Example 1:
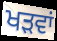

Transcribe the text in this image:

ਖੜਵਾਂ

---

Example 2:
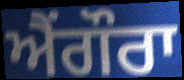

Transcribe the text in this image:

ਐਂਗੌਰਾ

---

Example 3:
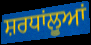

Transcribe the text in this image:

ਸ਼ਰਧਾਂਲੂਆਂ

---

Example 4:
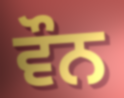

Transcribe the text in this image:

ਵੌਨ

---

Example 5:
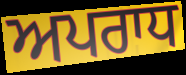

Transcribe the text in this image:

ਅਪਰਾਧ